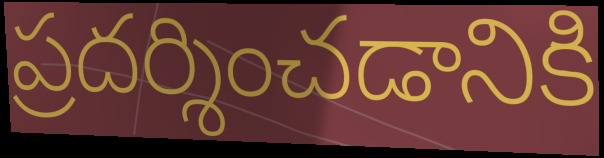
ప్రదర్శించడానికి